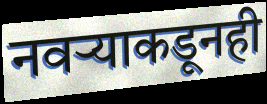
नवऱ्याकडूनही